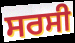
ਸਰਸੀ